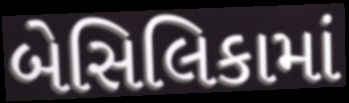
બેસિલિકામાં